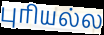
புரியல்ல